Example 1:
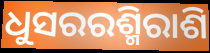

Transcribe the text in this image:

ଧୁସରରଶ୍ମିରାଶି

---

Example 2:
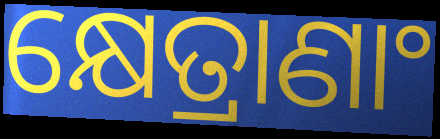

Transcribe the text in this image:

କ୍ଷେତ୍ରାଣାଂ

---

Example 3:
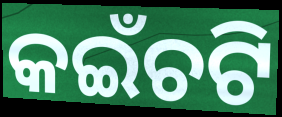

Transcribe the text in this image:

କଇଁଚଟି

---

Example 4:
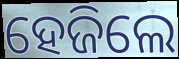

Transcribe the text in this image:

ହେଜିଲେ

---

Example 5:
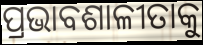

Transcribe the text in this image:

ପ୍ରଭାବଶାଳୀତାକୁ